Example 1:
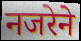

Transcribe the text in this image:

नजरेने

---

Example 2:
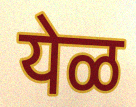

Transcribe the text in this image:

येळ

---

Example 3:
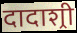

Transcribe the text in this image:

दादाश्री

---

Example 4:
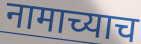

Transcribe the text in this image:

नामाच्याच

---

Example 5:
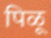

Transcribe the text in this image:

पिळू